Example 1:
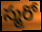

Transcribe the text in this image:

స్మరో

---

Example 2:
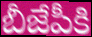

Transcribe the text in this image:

బీజేపీకి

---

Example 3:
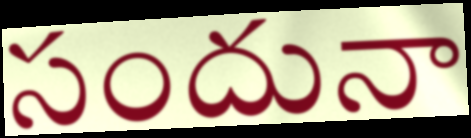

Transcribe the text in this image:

సందునా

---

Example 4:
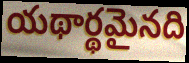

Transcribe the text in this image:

యథార్థమైనది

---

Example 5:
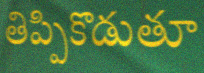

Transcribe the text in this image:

తిప్పికొడుతూ